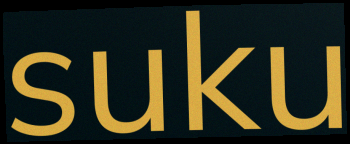
suku